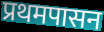
प्रथमपासन